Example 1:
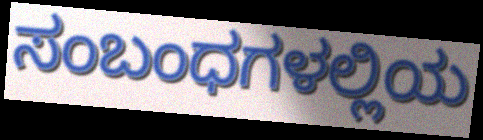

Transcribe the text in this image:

ಸಂಬಂಧಗಳಲ್ಲಿಯ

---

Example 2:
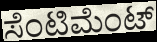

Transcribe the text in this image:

ಸೆಂಟಿಮೆಂಟ್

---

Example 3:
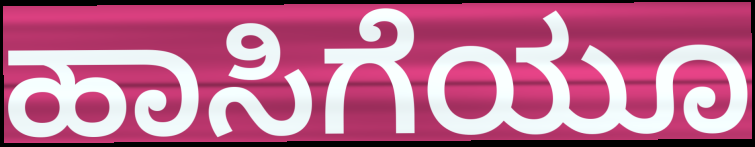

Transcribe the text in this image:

ಹಾಸಿಗೆಯೂ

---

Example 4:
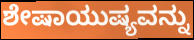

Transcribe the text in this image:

ಶೇಷಾಯುಷ್ಯವನ್ನು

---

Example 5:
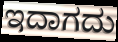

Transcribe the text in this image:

ಇದಾಗದು